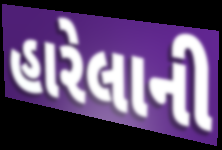
હારેલાની